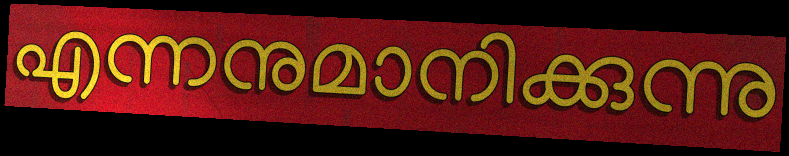
എന്നനുമാനിക്കുന്നു